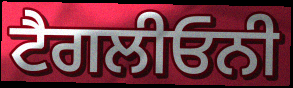
ਟੈਗਲੀਓਨੀ